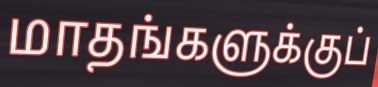
மாதங்களுக்குப்